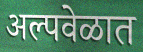
अल्पवेळात